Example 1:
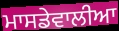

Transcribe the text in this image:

ਮਾਸਡੇਵਾਲੀਆ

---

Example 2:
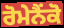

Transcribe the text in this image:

ਰੋਮੇਨੈਂਕੋ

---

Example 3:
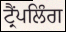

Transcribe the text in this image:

ਟ੍ਰੈਂਪਲਿੰਗ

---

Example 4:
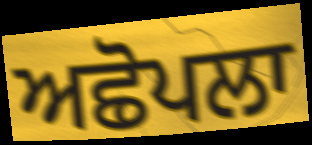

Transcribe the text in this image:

ਅਛੋਪਲਾ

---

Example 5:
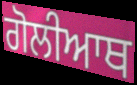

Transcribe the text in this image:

ਗੋਲੀਆਥ